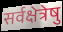
सर्वक्षेत्रेषु